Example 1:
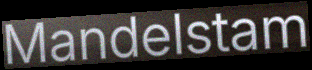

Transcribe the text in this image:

Mandelstam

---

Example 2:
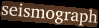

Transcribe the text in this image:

seismograph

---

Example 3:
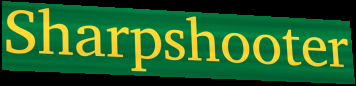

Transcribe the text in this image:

Sharpshooter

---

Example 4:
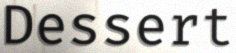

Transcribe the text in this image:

Dessert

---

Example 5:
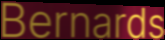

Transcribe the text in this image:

Bernards